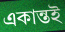
একান্তই